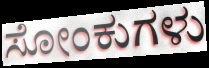
ಸೋಂಕುಗಳು